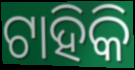
ଟାହିକି